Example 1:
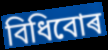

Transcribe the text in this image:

বিধিবোৰ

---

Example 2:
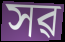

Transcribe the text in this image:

সৱ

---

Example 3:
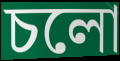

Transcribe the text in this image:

চলো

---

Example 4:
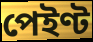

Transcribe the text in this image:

পেইণ্ট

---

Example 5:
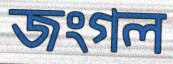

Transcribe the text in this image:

জংগল